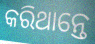
କରିଥାନ୍ତେ